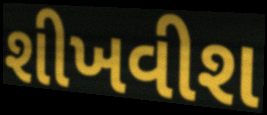
શીખવીશ